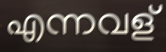
എന്നവള്